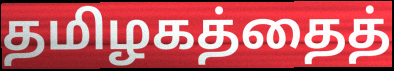
தமிழகத்தைத்